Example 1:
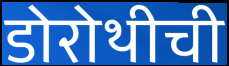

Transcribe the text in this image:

डोरोथीची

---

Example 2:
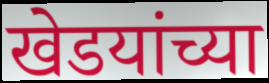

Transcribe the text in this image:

खेडयांच्या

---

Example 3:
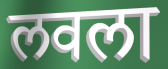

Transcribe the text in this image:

लवला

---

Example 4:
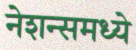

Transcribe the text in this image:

नेशन्समध्ये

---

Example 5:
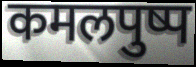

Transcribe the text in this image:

कमलपुष्प